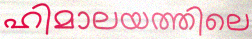
ഹിമാലയത്തിലെ